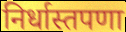
निर्धास्तपणा